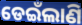
ଡେଇଁଲାଣି